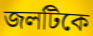
জলটিকে